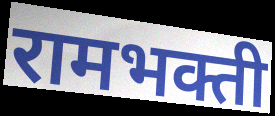
रामभक्ती